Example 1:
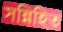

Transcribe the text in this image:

সন্নিহিত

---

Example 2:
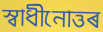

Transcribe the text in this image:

স্বাধীনোত্তৰ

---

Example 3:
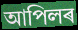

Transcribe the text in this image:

আপিলৰ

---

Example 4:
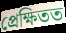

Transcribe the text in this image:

প্ৰেক্ষিতত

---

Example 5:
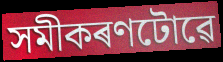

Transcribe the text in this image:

সমীকৰণটোৱে